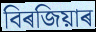
বিৰজিয়াৰ